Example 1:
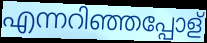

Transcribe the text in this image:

എന്നറിഞ്ഞപ്പോള്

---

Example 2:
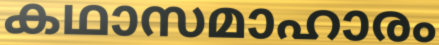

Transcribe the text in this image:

കഥാസമാഹാരം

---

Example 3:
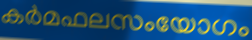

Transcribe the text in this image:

കർമഫലസംയോഗം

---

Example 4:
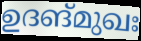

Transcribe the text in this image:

ഉദങ്മുഖഃ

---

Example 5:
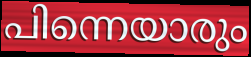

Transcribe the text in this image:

പിന്നെയാരും